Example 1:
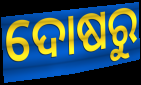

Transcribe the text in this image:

ଦୋଷରୁ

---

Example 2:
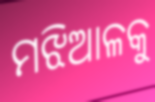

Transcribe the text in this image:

ମଝିଆଳକୁ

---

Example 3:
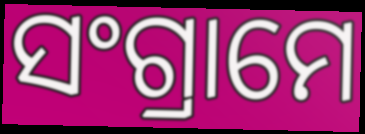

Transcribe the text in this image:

ସଂଗ୍ରାମେ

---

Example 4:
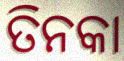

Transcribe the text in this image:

ତିନକା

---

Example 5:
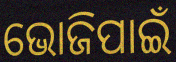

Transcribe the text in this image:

ଭୋଜିପାଇଁ